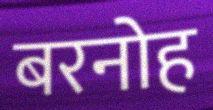
बरनोह